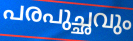
പരപുച്ഛവും